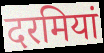
दरमियां